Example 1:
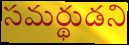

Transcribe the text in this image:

సమర్థుడని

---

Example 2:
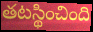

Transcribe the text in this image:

తటస్థించింది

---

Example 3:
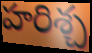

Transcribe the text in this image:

హరిశ్చ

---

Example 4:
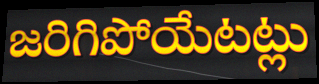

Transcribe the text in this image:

జరిగిపోయేటట్లు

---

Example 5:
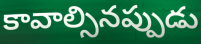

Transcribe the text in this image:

కావాల్సినప్పుడు